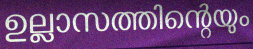
ഉല്ലാസത്തിന്റെയും